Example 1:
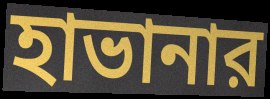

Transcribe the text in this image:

হাভানার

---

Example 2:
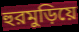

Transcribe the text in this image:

হুরমুড়িয়ে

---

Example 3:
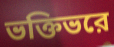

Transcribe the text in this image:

ভক্তিভরে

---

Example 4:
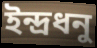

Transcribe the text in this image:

ইন্দ্রধনু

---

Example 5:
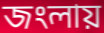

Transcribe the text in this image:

জংলায়